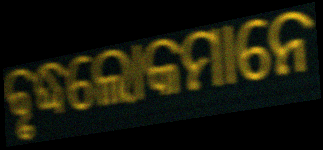
ବୃଦ୍ଧଲୋକମାନେ